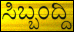
ಸಿಬ್ಬಂದ್ದಿ